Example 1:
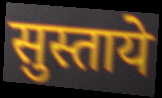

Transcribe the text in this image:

सुस्ताये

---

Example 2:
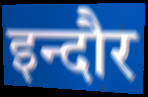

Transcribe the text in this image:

इन्दौर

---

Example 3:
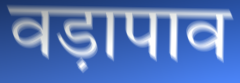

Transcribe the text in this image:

वड़ापाव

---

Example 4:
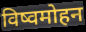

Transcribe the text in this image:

विष्वमोहन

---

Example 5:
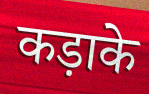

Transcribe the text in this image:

कड़ाके